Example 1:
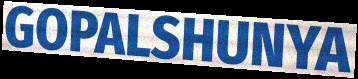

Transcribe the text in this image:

GOPALSHUNYA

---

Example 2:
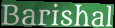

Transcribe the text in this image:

Barishal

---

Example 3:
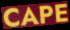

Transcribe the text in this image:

CAPE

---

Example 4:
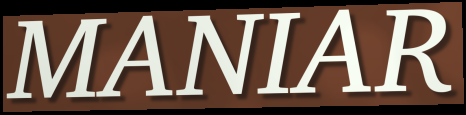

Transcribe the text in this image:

MANIAR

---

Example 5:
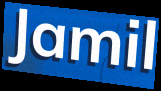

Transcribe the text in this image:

Jamil